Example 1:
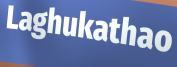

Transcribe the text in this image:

Laghukathao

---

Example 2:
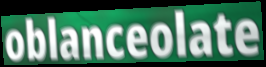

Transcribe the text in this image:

oblanceolate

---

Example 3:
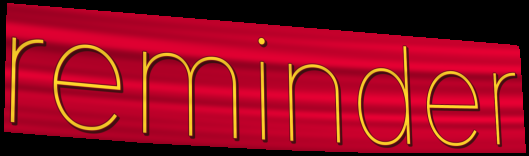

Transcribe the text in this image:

reminder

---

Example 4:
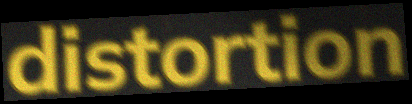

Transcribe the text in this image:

distortion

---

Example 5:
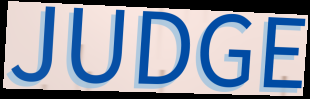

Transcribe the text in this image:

JUDGE